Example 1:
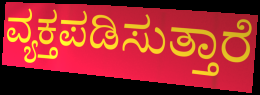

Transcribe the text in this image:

ವ್ಯಕ್ತಪಡಿಸುತ್ತಾರೆ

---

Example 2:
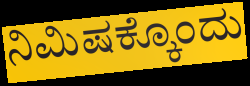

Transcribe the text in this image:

ನಿಮಿಷಕ್ಕೊಂದು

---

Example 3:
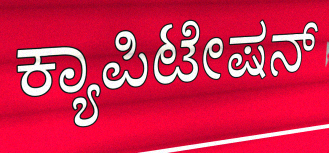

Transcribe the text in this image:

ಕ್ಯಾಪಿಟೇಷನ್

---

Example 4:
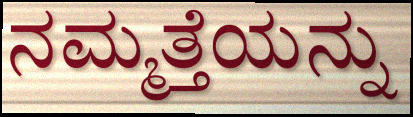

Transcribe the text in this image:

ನಮ್ಮತ್ತೆಯನ್ನು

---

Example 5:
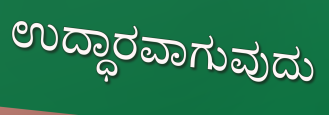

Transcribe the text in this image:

ಉದ್ಧಾರವಾಗುವುದು